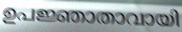
ഉപജ്ഞാതാവായി